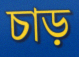
চাড়